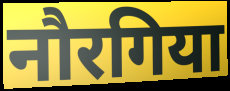
नौरगिया